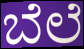
ಬೆಲೆ